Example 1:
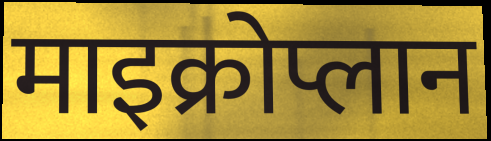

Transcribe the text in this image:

माइक्रोप्लान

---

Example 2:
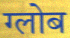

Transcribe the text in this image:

ग्‍लोब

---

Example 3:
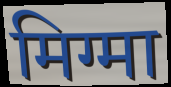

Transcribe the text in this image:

मिग्मा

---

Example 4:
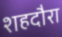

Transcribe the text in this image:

शहदौरा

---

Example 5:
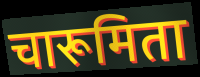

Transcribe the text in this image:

चारूमिता